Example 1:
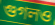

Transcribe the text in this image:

গুগলও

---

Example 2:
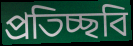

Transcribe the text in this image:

প্রতিচ্ছবি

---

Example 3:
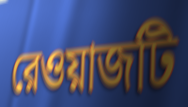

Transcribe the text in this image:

রেওয়াজটি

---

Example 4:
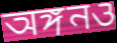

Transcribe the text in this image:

অঙ্গনও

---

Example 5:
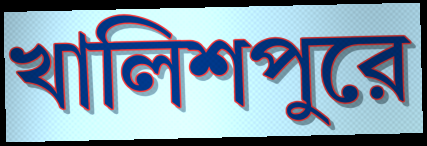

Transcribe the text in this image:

খালিশপুরে